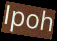
Ipoh